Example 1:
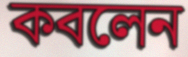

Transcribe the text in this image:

কবলেন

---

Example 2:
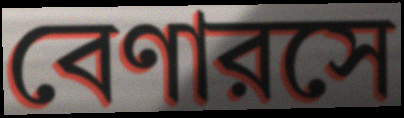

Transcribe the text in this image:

বেণারসে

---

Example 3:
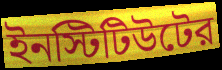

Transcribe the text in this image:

ইনস্টিটিউটের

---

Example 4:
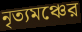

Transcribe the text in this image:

নৃত্যমঞ্চের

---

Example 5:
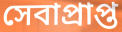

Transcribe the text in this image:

সেবাপ্রাপ্ত